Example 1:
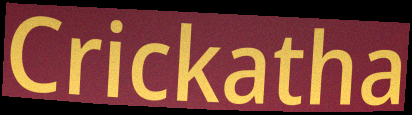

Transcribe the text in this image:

Crickatha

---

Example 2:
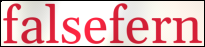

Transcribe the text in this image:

falsefern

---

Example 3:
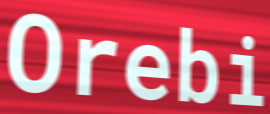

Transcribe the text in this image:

Orebi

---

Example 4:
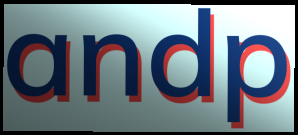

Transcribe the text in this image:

andp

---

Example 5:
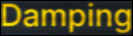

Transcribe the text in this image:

Damping